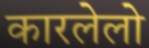
कारलेलो